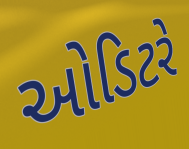
ઓડિટરે